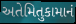
અતેમિતુકામાનં